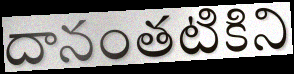
దానంతటికిని